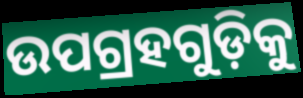
ଉପଗ୍ରହଗୁଡ଼ିକୁ